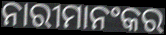
ନାରୀମାନଂକର